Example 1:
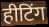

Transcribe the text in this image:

हीटिंग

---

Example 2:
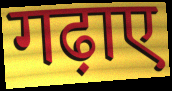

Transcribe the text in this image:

गढ़ाए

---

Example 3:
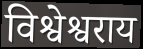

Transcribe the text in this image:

विश्वेश्वराय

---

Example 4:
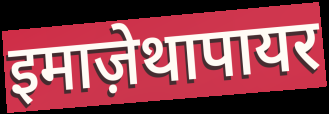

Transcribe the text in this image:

इमाज़ेथापायर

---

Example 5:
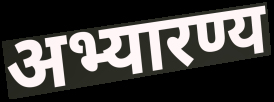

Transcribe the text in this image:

अभ्यारण्य